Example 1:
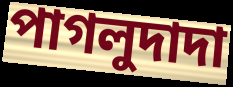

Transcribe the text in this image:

পাগলুদাদা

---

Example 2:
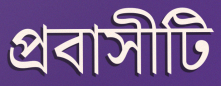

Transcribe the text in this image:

প্রবাসীটি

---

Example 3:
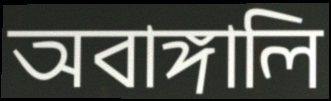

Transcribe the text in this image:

অবাঙ্গালি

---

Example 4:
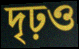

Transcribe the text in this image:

দৃঢ়ও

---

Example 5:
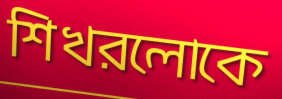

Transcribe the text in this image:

শিখরলোকে